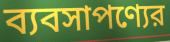
ব্যবসাপণ্যের